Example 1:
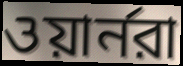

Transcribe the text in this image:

ওয়ার্নরা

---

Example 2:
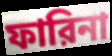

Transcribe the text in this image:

ফারিনা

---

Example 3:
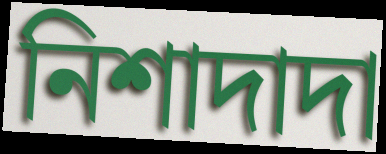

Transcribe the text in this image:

নিশাদাদা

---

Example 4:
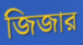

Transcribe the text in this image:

জিজার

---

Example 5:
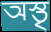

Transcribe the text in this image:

অস্তৃ